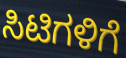
ಸಿಟಿಗಳಿಗೆ